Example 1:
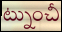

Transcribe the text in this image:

ట్నుంచీ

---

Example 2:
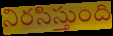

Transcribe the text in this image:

నిరసిస్తుంది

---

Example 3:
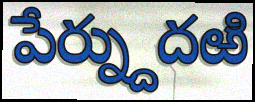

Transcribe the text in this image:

పేర్న్దుదఱి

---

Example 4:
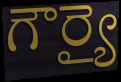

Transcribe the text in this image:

గౌర్యై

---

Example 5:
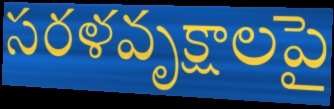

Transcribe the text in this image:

సరళవృక్షాలపై